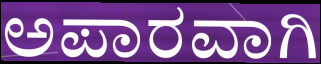
ಅಪಾರವಾಗಿ